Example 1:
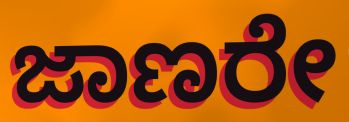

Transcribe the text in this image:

ಜಾಣರೇ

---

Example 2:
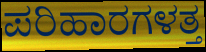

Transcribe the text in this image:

ಪರಿಹಾರಗಳತ್ತ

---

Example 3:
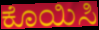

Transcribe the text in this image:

ಕೊಯಿಸಿ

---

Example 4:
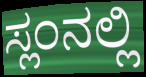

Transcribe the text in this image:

ಸ್ಲಂನಲ್ಲಿ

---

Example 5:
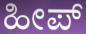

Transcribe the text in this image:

ಹೀಪ್